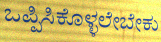
ಒಪ್ಪಿಸಿಕೊಳ್ಳಲೇಬೇಕು